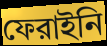
ফেরাইনি